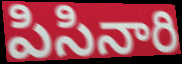
పిసినారి